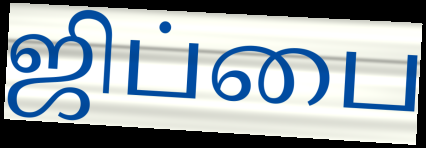
ஜிப்பை